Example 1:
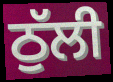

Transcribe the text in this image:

ਠੁੱਲੀ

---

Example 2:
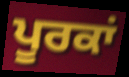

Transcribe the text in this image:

ਪੂਰਕਾਂ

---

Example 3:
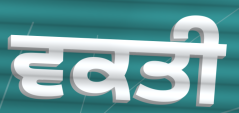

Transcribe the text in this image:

ਵਕਤੀ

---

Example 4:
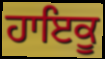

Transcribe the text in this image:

ਹਾਇਕੂ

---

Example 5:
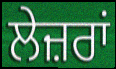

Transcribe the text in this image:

ਲੇਜ਼ਰਾਂ